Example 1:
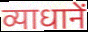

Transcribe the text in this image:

व्याधानें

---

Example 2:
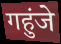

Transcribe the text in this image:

गहुंजे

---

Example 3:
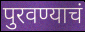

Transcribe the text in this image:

पुरवण्याचं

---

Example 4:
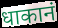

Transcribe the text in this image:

धाकानं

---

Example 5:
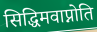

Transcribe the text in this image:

सिद्धिमवाप्नोति